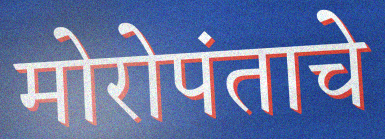
मोरोपंताचे